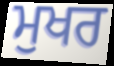
ਮੁਖਰ